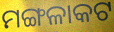
ମଙ୍ଗଳାକଟ